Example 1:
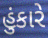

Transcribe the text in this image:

હુંકારે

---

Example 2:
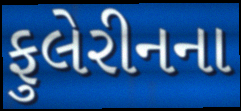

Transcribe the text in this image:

ફુલેરીનના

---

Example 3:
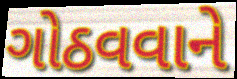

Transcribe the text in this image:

ગોઠવવાને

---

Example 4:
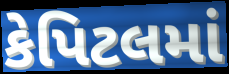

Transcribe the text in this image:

કેપિટલમાં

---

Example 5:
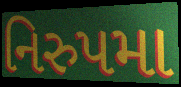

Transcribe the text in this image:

નિરુપમા